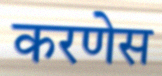
करणेस